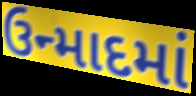
ઉન્માદમાં